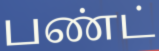
பண்ட்